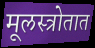
मूलस्त्रोतात